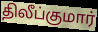
திலீப்குமார்